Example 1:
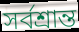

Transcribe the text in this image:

সৰ্বশ্ৰান্ত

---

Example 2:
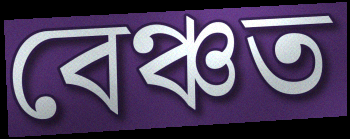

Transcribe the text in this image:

বেঞ্চত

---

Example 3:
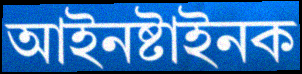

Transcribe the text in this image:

আইনষ্টাইনক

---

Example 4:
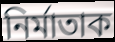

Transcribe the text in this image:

নিৰ্মাতাক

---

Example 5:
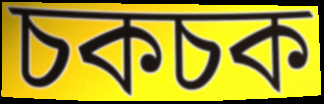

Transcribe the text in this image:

চকচক